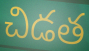
చిడత